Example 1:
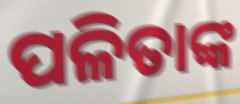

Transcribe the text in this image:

ପଳିତାଙ୍କ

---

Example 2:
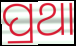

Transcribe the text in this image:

ପ୍ରଥା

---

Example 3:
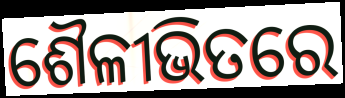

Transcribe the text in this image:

ଶୈଳୀଭିତରେ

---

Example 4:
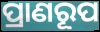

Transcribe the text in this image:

ପ୍ରାଣରୂପ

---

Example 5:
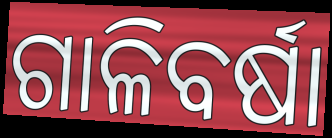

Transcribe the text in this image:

ଗାଳିବର୍ଷା